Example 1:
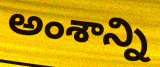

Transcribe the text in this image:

అంశాన్ని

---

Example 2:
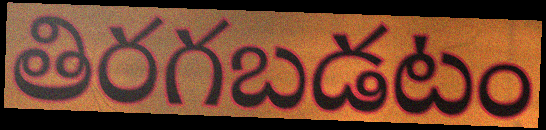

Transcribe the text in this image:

తిరగబడటం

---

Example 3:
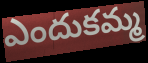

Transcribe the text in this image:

ఎందుకమ్మ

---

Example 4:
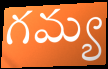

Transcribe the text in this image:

గమ్య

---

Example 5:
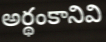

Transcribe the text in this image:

అర్థంకానివి